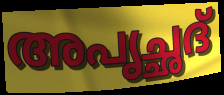
അപൃച്ഛദ്